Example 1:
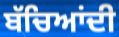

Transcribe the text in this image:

ਬੱਚਿਆਂਦੀ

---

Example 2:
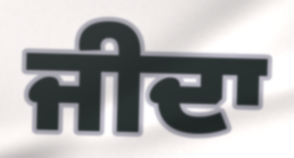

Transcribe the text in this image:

ਜੀਦਾ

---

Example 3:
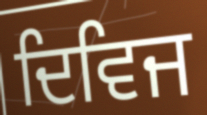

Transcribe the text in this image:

ਦਿਵਿਜ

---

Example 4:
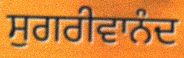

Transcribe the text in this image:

ਸੁਗਰੀਵਾਨੰਦ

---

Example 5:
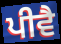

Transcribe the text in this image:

ਪੀਵੈ